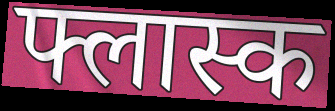
फ्लास्क